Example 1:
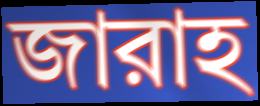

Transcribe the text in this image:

জারাহ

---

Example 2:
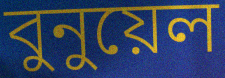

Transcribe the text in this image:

বুনুয়েল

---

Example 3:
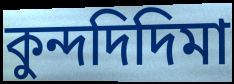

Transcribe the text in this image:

কুন্দদিদিমা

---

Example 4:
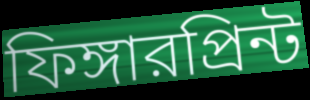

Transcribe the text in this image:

ফিঙ্গারপ্রিন্ট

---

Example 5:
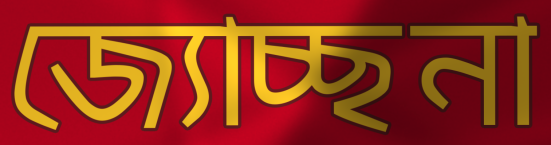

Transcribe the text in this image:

জ্যোচ্ছনা